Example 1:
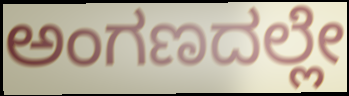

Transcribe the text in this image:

ಅಂಗಣದಲ್ಲೇ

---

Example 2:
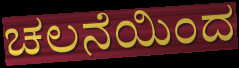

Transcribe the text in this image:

ಚಲನೆಯಿಂದ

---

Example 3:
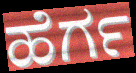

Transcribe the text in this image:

ಹೆರ್ಗ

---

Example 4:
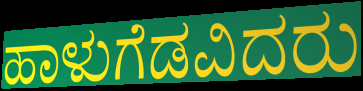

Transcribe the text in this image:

ಹಾಳುಗೆಡವಿದರು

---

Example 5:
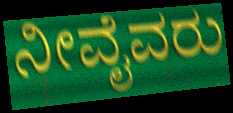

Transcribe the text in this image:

ನೀವೈವರು